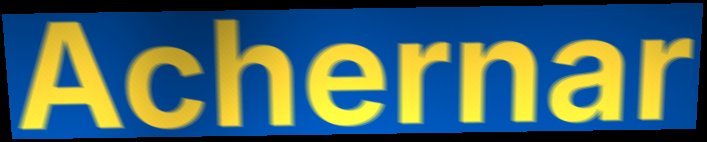
Achernar